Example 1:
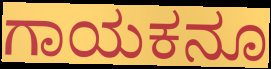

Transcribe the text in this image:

ಗಾಯಕನೂ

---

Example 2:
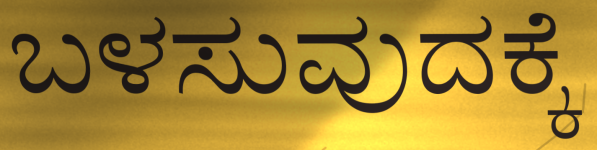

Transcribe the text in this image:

ಬಳಸುವುದಕ್ಕೆ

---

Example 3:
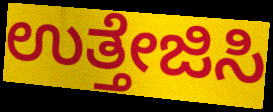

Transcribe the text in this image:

ಉತ್ತೇಜಿಸಿ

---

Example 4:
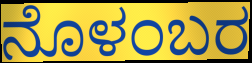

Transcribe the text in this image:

ನೊಳಂಬರ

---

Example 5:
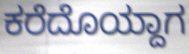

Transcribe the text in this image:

ಕರೆದೊಯ್ದಾಗ